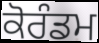
ਕੋਰੰਡਮ